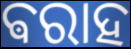
ଵରାହ